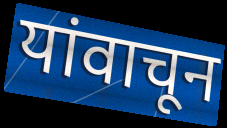
यांवाचून